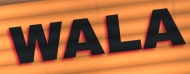
WALA